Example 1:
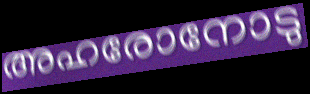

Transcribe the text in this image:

അഹരോനോടു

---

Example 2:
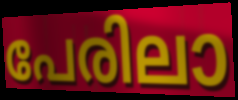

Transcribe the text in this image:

പേരിലാ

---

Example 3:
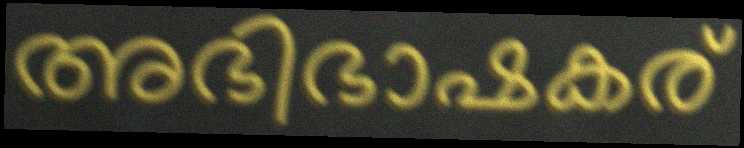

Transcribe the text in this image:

അഭിഭാഷകര്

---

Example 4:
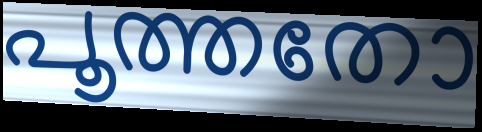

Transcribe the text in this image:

പൂത്തതോ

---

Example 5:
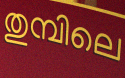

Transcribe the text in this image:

തുമ്പിലെ